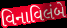
વિનાવિલંબે